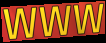
www